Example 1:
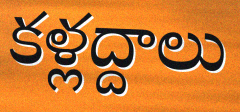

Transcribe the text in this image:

కళ్లద్దాలు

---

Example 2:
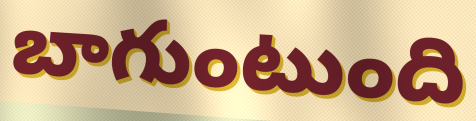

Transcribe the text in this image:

బాగుంటుంది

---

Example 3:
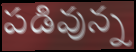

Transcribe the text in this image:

పడివున్న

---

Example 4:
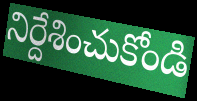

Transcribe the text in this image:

నిర్దేశించుకోండి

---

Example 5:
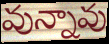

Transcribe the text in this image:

వున్నావు